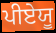
ਪੀਏਯੂ